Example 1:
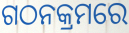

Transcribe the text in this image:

ଗଠନକ୍ରମରେ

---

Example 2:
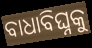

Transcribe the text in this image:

ବାଧାବିଘ୍ନକୁ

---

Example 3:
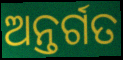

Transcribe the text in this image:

ଅନ୍ତର୍ଗତ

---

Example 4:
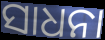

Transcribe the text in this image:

ସାଧନା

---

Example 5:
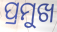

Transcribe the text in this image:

ପ୍ରମୁଖ